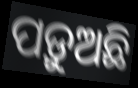
ପଡ଼ୁଅଛି